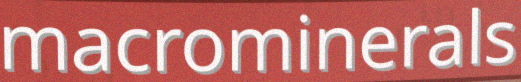
macrominerals